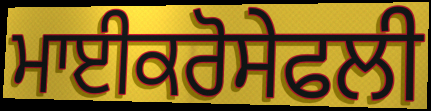
ਮਾਈਕਰੋਸੇਫਲੀ